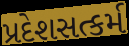
પ્રદેશસત્કર્મ